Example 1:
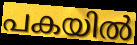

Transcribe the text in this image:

പകയിൽ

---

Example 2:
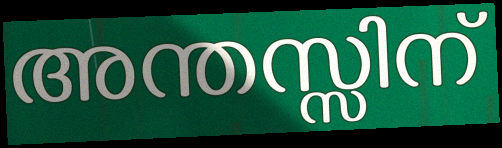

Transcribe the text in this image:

അന്തസ്സിന്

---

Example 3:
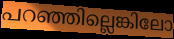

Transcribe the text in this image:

പറഞ്ഞില്ലെങ്കിലോ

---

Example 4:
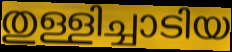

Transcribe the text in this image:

തുള്ളിച്ചാടിയ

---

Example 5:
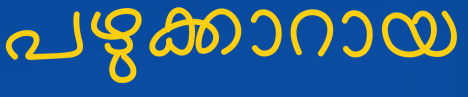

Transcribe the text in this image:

പഴുക്കാറായ